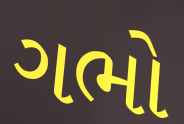
ગભો